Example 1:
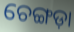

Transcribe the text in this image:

ଚେଙ୍ଗଡ଼ା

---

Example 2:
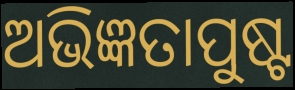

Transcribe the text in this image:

ଅଭିଜ୍ଞତାପୁଷ୍ଟ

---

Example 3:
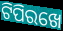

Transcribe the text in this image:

ଟିପିରଖେ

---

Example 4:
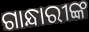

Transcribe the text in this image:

ଗାନ୍ଧାରୀଙ୍କ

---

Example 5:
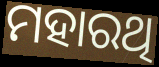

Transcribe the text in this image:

ମହାରଥି